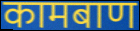
कामबाण